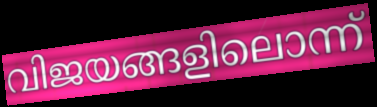
വിജയങ്ങളിലൊന്ന്